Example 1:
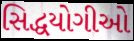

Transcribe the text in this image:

સિદ્ધયોગીઓ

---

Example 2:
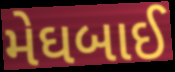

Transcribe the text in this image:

મેઘબાઈ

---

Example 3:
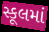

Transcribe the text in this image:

સ્કૂલમાં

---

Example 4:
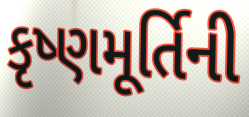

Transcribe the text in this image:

કૃષ્ણમૂર્તિની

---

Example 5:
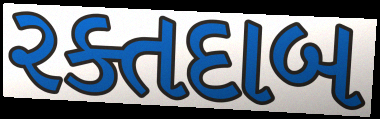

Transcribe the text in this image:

રક્તદાબ